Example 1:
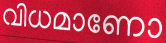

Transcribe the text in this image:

വിധമാണോ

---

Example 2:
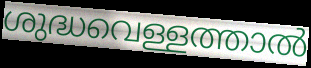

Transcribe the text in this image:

ശുദ്ധവെള്ളത്താൽ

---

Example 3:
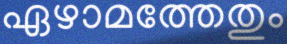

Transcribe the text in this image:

ഏഴാമത്തേതും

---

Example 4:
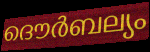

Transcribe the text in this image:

ദൌർബല്യം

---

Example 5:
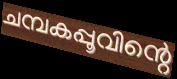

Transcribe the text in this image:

ചമ്പകപ്പൂവിന്റെ